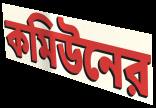
কমিউনের